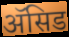
ॲसिड